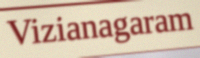
Vizianagaram